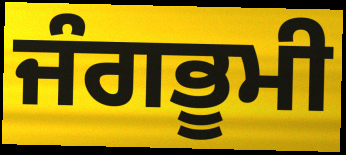
ਜੰਗਭੂਮੀ